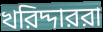
খরিদ্দাররা